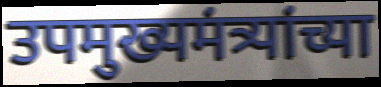
उपमुख्यमंत्र्यांच्या